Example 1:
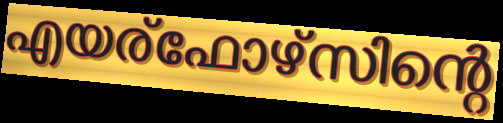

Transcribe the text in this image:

എയര്ഫോഴ്സിന്റെ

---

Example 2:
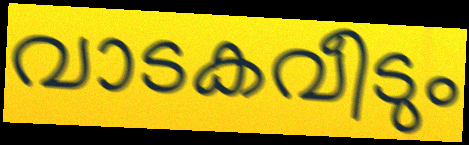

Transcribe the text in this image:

വാടകവീടും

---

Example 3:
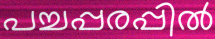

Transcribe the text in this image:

പച്ചപ്പരപ്പിൽ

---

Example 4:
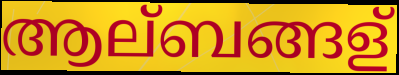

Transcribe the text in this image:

ആല്ബങ്ങള്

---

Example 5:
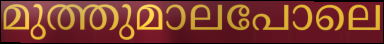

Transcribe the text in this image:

മുത്തുമാലപോലെ